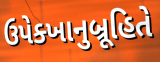
ઉપેક્ખાનુબ્રૂહિતે